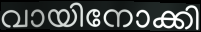
വായിനോക്കി